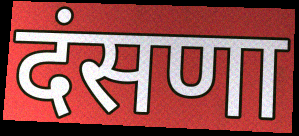
दंसणा